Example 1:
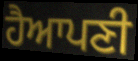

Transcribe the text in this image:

ਹੈਆਪਣੀ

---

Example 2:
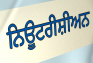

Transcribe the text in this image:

ਨਿਊਟਰੀਸ਼ੀਅਨ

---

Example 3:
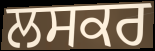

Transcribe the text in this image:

ਲਸਕਰ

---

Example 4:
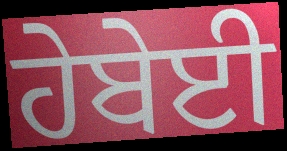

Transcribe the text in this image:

ਹੇਬੇਈ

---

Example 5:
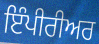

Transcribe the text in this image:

ਇੰਪੀਰੀਅਰ